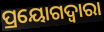
ପ୍ରୟୋଗଦ୍ୱାରା